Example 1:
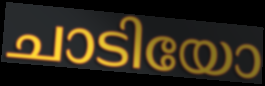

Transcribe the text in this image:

ചാടിയോ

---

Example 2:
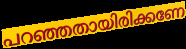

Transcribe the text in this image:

പറഞ്ഞതായിരിക്കണേ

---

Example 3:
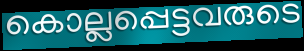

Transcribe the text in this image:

കൊല്ലപ്പെട്ടവരുടെ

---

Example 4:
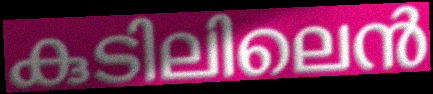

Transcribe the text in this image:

കുടിലിലെൻ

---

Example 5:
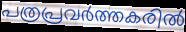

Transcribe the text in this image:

പത്രപ്രവർത്തകരിൽ